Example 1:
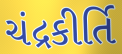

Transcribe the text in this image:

ચંદ્રકીર્તિ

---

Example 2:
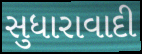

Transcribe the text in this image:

સુધારાવાદી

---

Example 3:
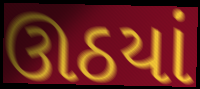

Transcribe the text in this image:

ઊઠયાં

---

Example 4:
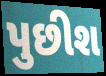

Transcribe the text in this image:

પુછીશ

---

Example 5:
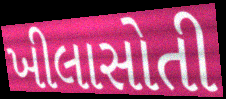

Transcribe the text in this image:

ખીલાસોતી